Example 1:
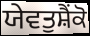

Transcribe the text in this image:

ਯੇਵਤੁਸ਼ੈਂਕੋ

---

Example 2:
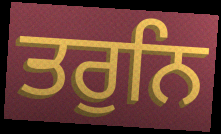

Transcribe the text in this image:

ਤਰੁਨਿ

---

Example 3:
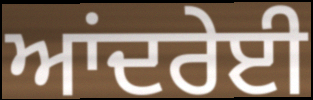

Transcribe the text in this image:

ਆਂਦਰੇਈ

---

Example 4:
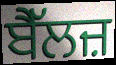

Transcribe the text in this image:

ਬੈੱਲਜ਼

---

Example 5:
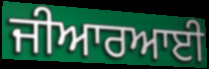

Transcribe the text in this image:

ਜੀਆਰਆਈ